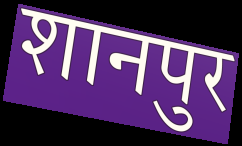
शानपुर